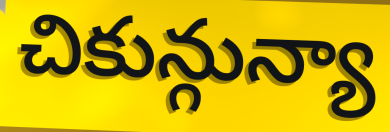
చికున్గున్యా